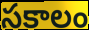
సకాలం